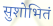
सुशोभितं